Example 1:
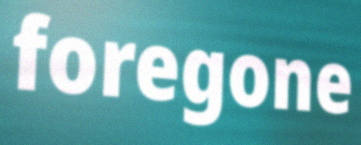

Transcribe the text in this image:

foregone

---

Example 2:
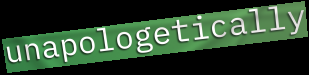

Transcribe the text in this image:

unapologetically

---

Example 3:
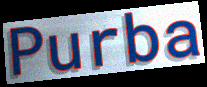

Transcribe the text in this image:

Purba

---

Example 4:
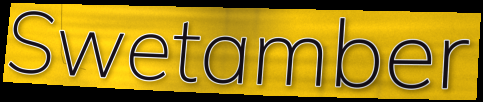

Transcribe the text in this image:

Swetamber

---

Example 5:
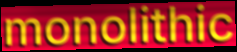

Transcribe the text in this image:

monolithic